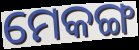
ମେକଙ୍ଗ